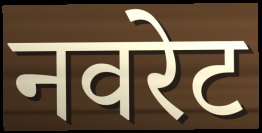
नवरेट